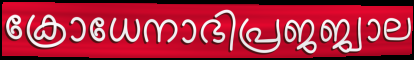
ക്രോധേനാഭിപ്രജജ്വാല